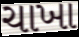
ચાખા